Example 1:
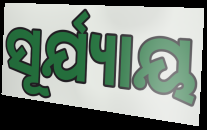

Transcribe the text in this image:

ସୂର୍ଯ୍ୟାୟ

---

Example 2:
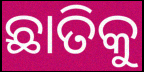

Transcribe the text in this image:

ଛାତିକୁ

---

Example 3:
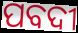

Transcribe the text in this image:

ପବଦୀ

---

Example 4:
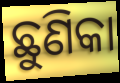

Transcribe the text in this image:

ଛୁଣିକା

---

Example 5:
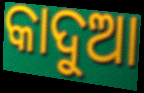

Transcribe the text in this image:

କାଦୁଆ